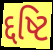
દ્દષ્ટિ